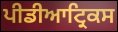
ਪੀਡੀਆਟ੍ਰਿਕਸ